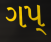
ગપ્